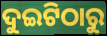
ଦୁଇଟିଠାରୁ